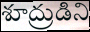
శూద్రుడిని